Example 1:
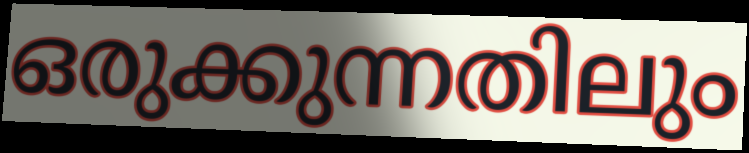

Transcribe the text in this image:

ഒരുക്കുന്നതിലും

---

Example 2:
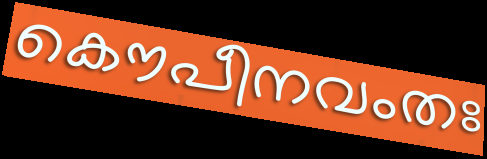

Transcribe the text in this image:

കൌപീനവംതഃ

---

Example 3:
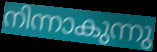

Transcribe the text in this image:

നിന്നാകുന്നു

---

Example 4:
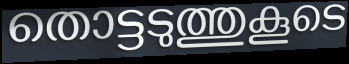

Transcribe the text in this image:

തൊട്ടടുത്തുകൂടെ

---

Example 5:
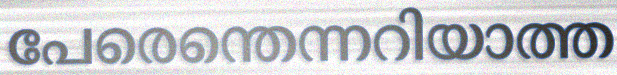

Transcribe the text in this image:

പേരെന്തെന്നറിയാത്ത